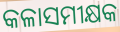
କଳାସମୀକ୍ଷକ